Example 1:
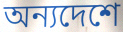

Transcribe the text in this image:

অন্যদেশে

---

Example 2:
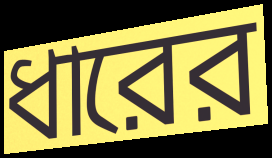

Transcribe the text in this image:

ধারের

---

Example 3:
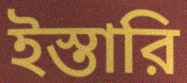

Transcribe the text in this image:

ইস্তারি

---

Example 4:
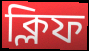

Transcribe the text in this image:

ক্লিফ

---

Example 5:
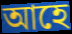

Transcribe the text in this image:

আহে